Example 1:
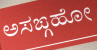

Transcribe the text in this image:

ಅಸಙ್ಗಹೋ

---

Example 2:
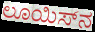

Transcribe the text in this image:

ಲೂಯಿಸ್‌ನ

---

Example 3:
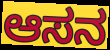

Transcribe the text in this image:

ಆಸನ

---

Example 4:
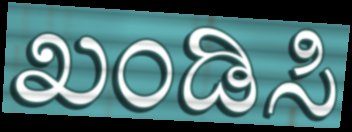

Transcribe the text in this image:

ಖಂಡಿಸಿ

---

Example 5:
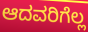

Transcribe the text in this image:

ಆದವರಿಗೆಲ್ಲ